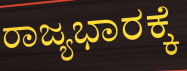
ರಾಜ್ಯಭಾರಕ್ಕೆ